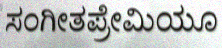
ಸಂಗೀತಪ್ರೇಮಿಯೂ